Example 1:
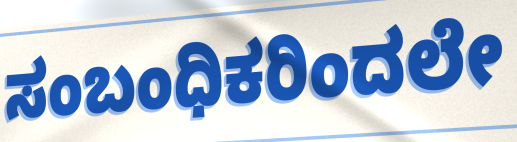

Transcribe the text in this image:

ಸಂಬಂಧಿಕರಿಂದಲೇ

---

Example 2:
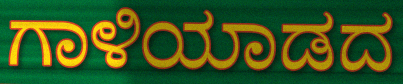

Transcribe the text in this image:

ಗಾಳಿಯಾಡದ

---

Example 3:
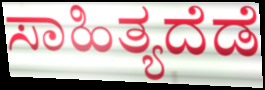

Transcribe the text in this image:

ಸಾಹಿತ್ಯದೆಡೆ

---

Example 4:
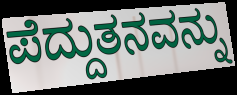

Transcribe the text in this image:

ಪೆದ್ದುತನವನ್ನು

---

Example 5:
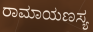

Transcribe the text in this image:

ರಾಮಾಯಣಸ್ಯ